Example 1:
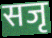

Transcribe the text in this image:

सजृ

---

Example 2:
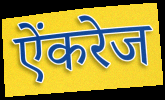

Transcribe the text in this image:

ऐंकरेज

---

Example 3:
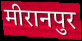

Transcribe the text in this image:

मीरानपुर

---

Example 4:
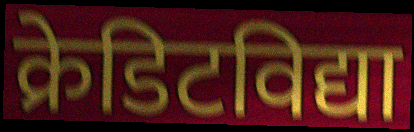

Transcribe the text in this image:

क्रेडिटविद्या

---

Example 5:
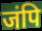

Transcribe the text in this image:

जंपि